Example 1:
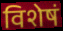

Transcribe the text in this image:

विशेषं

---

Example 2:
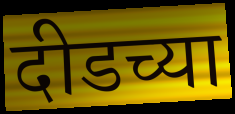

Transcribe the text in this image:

दीडच्या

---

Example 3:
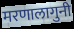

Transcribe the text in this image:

मरणालागुनी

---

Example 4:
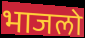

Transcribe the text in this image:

भाजलो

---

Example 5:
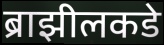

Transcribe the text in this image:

ब्राझीलकडे